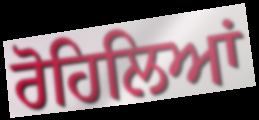
ਰੋਹਿਲਿਆਂ